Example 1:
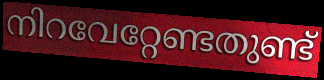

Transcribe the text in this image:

നിറവേറ്റേണ്ടതുണ്ട്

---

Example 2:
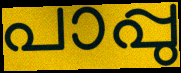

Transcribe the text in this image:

പാപ്പു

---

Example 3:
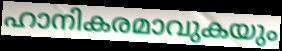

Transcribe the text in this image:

ഹാനികരമാവുകയും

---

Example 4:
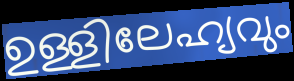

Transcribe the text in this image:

ഉള്ളിലേഹ്യവും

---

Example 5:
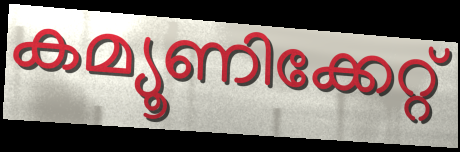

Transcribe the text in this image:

കമ്യൂണിക്കേറ്റ്